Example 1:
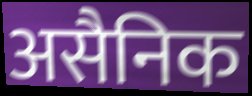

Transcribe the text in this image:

असैनिक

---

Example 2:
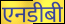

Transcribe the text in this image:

एनडीबी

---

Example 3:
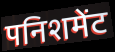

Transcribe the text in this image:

पनिशमेंट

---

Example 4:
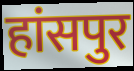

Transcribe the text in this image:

हांसपुर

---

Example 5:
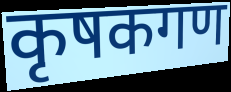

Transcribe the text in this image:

कृषकगण